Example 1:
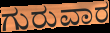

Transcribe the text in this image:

ಗುರುವಾರ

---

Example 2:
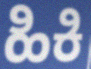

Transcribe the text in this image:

ಹಿಕಿ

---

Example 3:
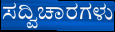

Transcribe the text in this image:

ಸದ್ವಿಚಾರಗಳು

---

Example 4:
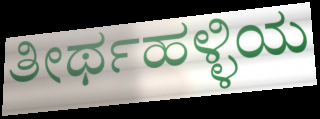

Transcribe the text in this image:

ತೀರ್ಥಹಳ್ಳಿಯ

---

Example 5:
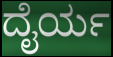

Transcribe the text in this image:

ದೈರ್ಯ